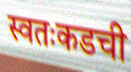
स्वतःकडची